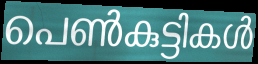
പെൺകുട്ടികൾ